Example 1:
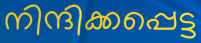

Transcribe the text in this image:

നിന്ദിക്കപ്പെട്ട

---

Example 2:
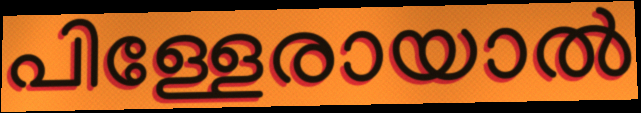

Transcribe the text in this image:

പിള്ളേരായാൽ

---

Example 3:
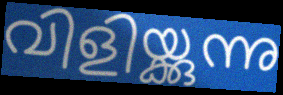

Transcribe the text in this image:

വിളിയ്ക്കുന്നു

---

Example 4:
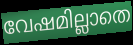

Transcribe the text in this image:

വേഷമില്ലാതെ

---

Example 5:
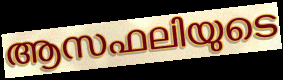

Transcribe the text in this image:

ആസഫലിയുടെ